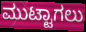
ಮುಟ್ಟಾಗಲು